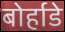
बोर्हाडे